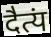
दैत्यं